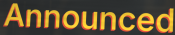
Announced